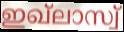
ഇഖ്ലാസ്വ്